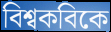
বিশ্বকবিকে